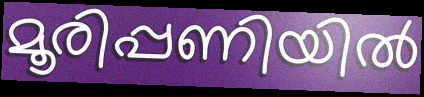
മൂരിപ്പണിയിൽ